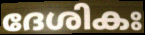
ദേശികഃ